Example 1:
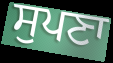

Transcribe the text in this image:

ਸੁਪਣਾ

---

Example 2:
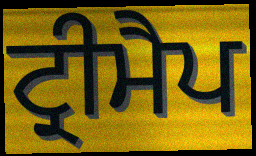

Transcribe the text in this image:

ਟ੍ਰੀਮੈਪ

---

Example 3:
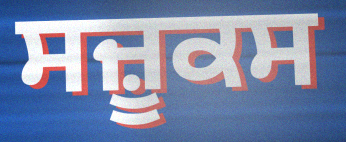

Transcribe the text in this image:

ਸਜ਼ੂਕਸ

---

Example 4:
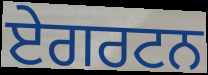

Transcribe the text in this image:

ਏਗਰਟਨ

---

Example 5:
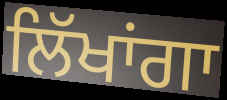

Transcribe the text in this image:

ਲਿੱਖਾਂਗਾ